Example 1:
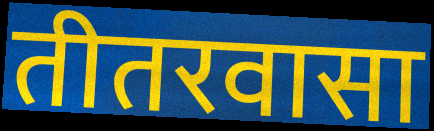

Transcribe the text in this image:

तीतरवासा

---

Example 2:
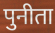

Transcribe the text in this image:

पुनीता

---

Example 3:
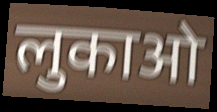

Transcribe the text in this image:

लुकाओ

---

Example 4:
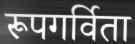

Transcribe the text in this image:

रूपगर्विता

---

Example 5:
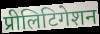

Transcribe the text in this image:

प्रीलिटिगेशन